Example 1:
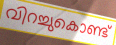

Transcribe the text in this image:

വിറച്ചുകൊണ്ട്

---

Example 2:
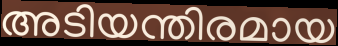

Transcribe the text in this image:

അടിയന്തിരമായ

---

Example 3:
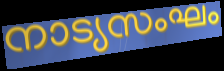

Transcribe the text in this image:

നാട്യസംഘം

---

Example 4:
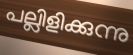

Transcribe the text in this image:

പല്ലിളിക്കുന്നു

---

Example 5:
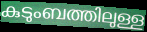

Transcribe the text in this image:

കുടുംബത്തിലുള്ള